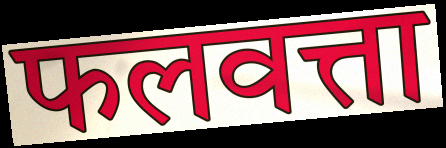
फलवत्ता